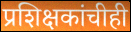
प्रशिक्षकांचीही